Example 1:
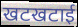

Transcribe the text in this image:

खटखटाई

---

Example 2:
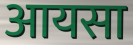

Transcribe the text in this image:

आयसा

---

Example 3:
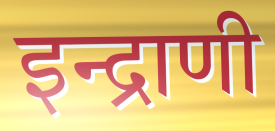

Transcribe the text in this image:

इन्द्राणी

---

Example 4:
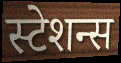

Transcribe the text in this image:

स्टेशन्स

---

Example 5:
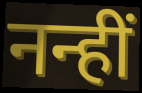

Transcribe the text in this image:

नन्‍हीं